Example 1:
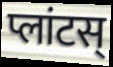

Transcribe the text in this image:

प्लांटस्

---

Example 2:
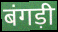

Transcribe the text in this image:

बंगड़ी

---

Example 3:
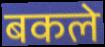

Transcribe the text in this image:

बकले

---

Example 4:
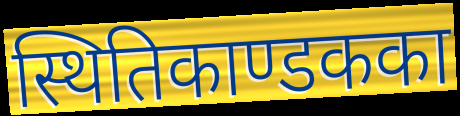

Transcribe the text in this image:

स्थितिकाण्डकका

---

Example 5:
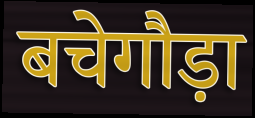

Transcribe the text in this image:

बचेगौड़ा